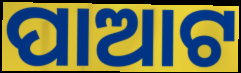
ପାଆଟ